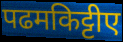
पढमकिट्टीए